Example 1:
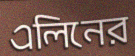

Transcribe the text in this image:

এলিনের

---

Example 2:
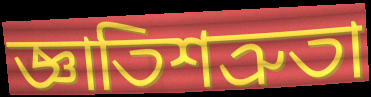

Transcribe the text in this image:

জ্ঞাতিশত্রুতা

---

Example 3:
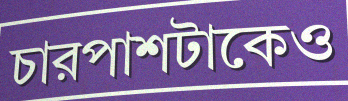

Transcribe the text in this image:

চারপাশটাকেও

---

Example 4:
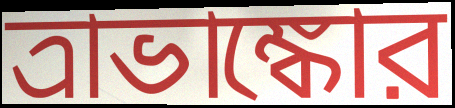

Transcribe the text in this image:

ত্রাভাঙ্কোর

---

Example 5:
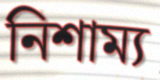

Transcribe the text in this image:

নিশাম্য